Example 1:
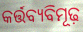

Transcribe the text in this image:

କର୍ତ୍ତବ୍ୟବିମୂଢ଼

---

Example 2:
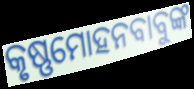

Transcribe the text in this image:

କୃଷ୍ଣମୋହନବାବୁଙ୍କ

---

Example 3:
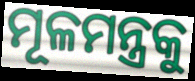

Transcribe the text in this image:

ମୂଳମନ୍ତ୍ରକୁ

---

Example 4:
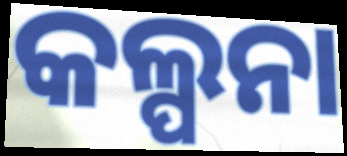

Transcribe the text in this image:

କଲ୍ପନା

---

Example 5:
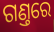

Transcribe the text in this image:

ଗଣ୍ତରେ